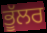
ਭੂੱਲਰ